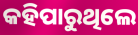
କହିପାରୁଥିଲେ